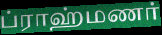
ப்ராஹ்மணர்